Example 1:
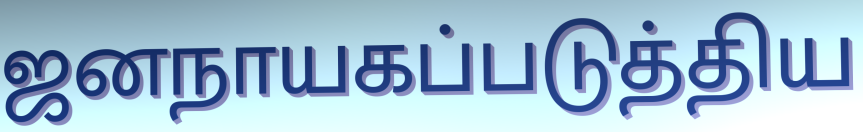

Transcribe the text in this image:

ஜனநாயகப்படுத்திய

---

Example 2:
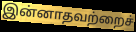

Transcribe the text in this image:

இன்னாதவற்றைச்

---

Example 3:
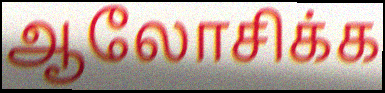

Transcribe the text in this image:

ஆலோசிக்க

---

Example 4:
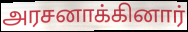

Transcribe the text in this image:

அரசனாக்கினார்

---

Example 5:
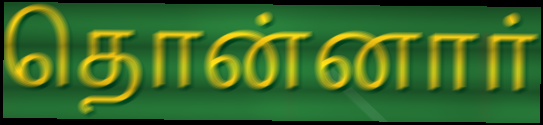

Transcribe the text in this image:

தொன்னார்